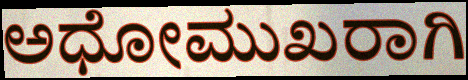
ಅಧೋಮುಖರಾಗಿ